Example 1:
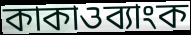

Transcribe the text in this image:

কাকাওব্যাংক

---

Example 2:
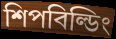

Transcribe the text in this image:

শিপবিল্ডিং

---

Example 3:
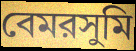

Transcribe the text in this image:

বেমরসুমি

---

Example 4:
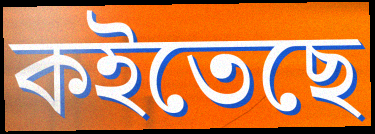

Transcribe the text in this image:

কইতেছে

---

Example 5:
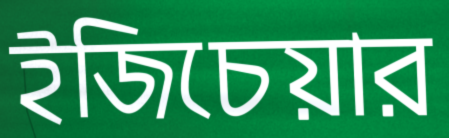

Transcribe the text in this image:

ইজিচেয়ার